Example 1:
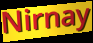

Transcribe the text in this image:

Nirnay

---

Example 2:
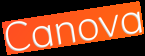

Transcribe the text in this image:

Canova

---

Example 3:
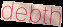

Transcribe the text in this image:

debth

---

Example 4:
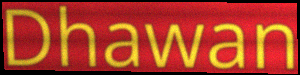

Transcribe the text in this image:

Dhawan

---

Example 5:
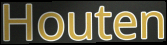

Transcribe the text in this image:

Houten